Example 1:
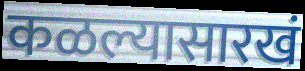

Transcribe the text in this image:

कळल्यासारखं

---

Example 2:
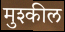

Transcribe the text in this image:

मुश्कील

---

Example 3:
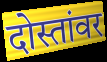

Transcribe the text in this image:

दोस्तांवर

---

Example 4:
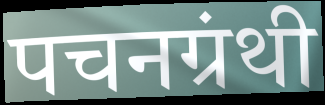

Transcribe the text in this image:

पचनग्रंथी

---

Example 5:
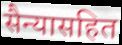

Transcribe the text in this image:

सैन्यासहित